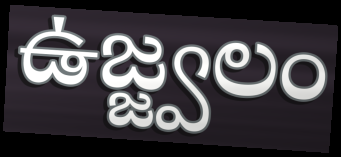
ఉజ్జ్వలం